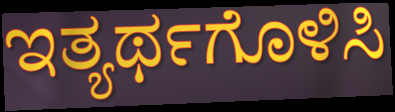
ಇತ್ಯರ್ಥಗೊಳಿಸಿ